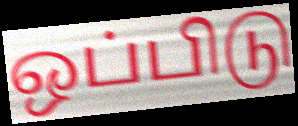
ஒப்பிடு